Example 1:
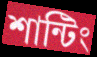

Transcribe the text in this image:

শান্টিং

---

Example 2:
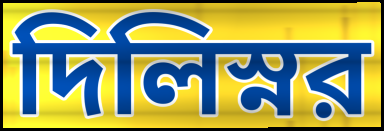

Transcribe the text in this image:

দিলিস্নর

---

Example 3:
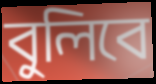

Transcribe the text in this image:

বুলিবে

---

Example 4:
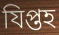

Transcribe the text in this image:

যিপ্তহ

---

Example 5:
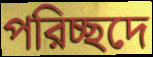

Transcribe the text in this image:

পরিচ্ছদে